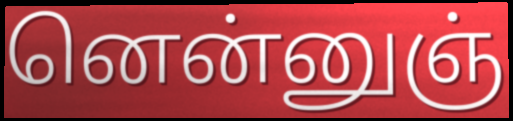
னென்னுஞ்